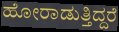
ಹೋರಾಡುತ್ತಿದ್ದರೆ